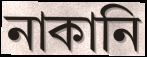
নাকানি